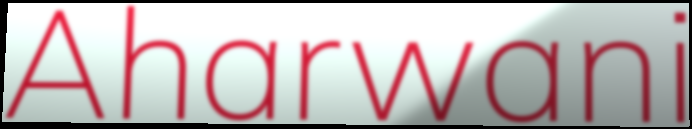
Aharwani